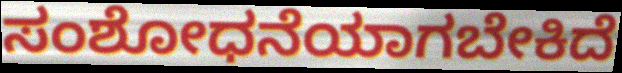
ಸಂಶೋಧನೆಯಾಗಬೇಕಿದೆ